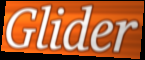
Glider